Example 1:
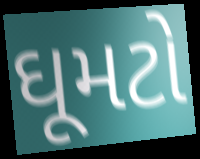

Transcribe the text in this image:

ઘૂમટો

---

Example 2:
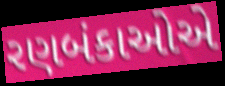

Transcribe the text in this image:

રણબંકાઓએ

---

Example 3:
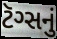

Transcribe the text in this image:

ટૅગ્સનું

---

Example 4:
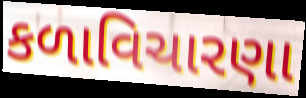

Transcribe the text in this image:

કળાવિચારણા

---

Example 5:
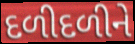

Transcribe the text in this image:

દળીદળીને